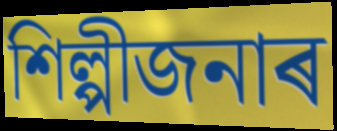
শিল্পীজনাৰ